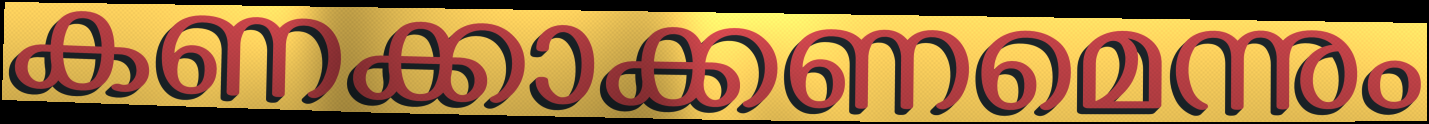
കണക്കാക്കണമെന്നും